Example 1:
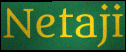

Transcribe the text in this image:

Netaji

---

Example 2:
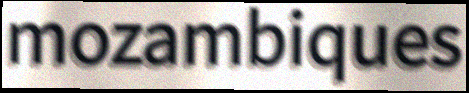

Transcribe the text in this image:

mozambiques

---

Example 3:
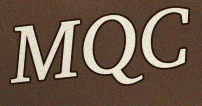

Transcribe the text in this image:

MQC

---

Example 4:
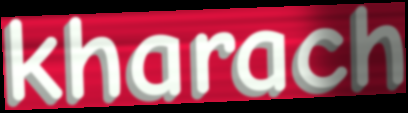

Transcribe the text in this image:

kharach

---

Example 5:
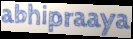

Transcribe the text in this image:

abhipraaya